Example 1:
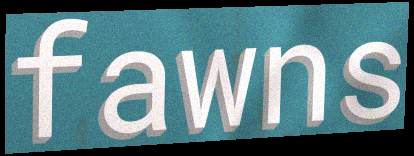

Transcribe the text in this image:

fawns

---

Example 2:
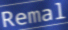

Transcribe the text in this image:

Remal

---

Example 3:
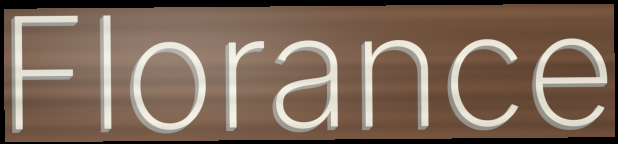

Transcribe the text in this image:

Florance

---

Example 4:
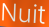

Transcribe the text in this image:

Nuit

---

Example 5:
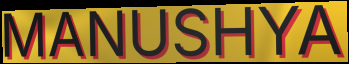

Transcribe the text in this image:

MANUSHYA